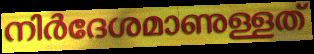
നിർദേശമാണുള്ളത്